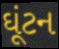
ઘૂંટન